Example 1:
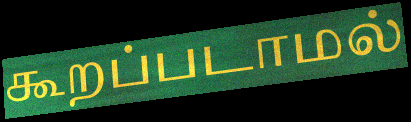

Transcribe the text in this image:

கூறப்படாமல்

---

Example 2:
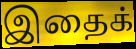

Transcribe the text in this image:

இதைக்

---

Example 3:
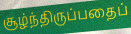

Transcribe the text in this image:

சூழ்ந்திருப்பதைப்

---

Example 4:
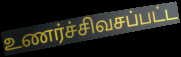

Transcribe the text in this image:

உணர்ச்சிவசப்பட்ட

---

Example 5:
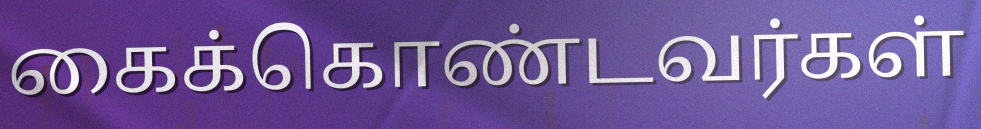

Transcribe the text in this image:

கைக்கொண்டவர்கள்